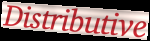
Distributive